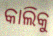
କାଲିକୁ